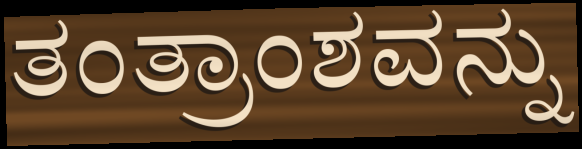
ತಂತ್ರಾಂಶವನ್ನು